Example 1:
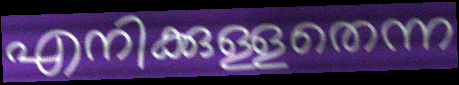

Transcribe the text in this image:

എനിക്കുള്ളതെന്ന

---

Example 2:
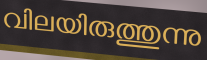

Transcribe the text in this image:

വിലയിരുത്തുന്നു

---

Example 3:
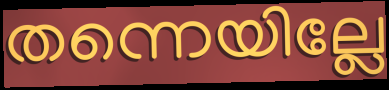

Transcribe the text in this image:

തന്നെയില്ലേ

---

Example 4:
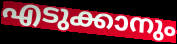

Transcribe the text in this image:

എടുക്കാനും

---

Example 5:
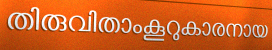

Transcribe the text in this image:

തിരുവിതാംകൂറുകാരനായ